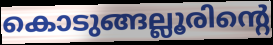
കൊടുങ്ങല്ലൂരിന്റെ